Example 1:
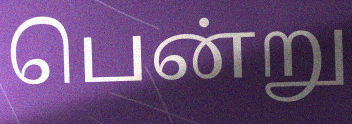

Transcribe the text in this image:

பென்று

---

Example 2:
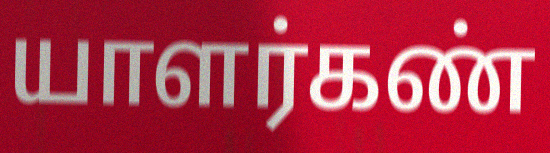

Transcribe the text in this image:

யாளர்கண்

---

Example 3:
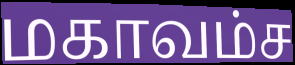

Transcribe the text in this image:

மகாவம்ச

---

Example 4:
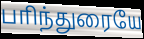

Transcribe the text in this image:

பரிந்துரையே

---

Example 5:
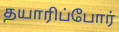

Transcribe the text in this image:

தயாரிப்போர்